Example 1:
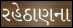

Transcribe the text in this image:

રહેઠાણના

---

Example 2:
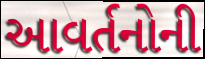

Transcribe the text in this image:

આવર્તનોની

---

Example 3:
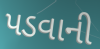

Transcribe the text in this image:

પડવાની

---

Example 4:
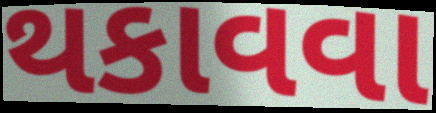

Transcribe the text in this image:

થકાવવા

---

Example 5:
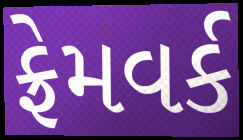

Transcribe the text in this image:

ફ્રેમવર્ક